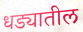
धड्यातील